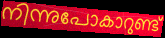
നിന്നുപോകാറുണ്ട്